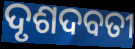
ଦୃଶଦବତୀ